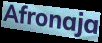
Afronaja